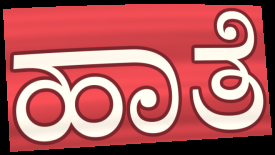
ಹಾತೆ